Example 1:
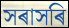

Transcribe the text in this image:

সৰাসৰি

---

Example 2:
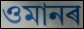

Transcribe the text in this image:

ওমানৰ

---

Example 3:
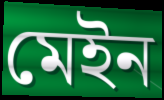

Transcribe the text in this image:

মেইন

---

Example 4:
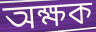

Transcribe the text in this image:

অক্ষক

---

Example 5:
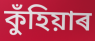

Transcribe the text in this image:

কুঁহিয়াৰ